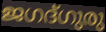
ജഗദ്ഗുരു